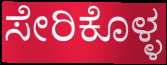
ಸೇರಿಕೊಳ್ಳ